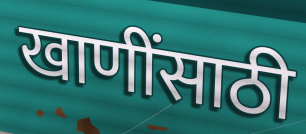
खाणींसाठी